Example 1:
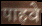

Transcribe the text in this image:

पाहवे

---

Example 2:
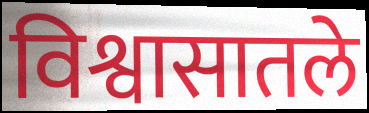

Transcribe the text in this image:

विश्वासातले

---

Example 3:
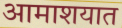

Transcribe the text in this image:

आमाशयात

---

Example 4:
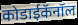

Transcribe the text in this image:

कोडाईकॅनॉल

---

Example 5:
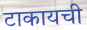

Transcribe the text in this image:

टाकायची